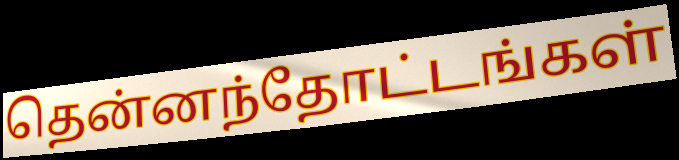
தென்னந்தோட்டங்கள்